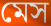
মেস